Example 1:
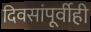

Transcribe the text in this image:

दिवसांपूर्वीही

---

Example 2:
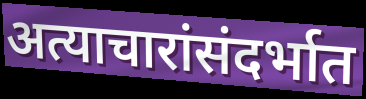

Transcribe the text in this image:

अत्याचारांसंदर्भात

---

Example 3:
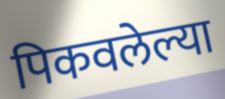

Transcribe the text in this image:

पिकवलेल्या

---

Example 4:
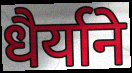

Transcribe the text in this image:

धैर्याने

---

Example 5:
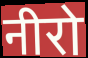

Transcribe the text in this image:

नीरो